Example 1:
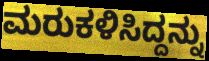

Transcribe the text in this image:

ಮರುಕಳಿಸಿದ್ದನ್ನು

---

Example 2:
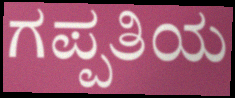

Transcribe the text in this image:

ಗಪ್ಪತಿಯ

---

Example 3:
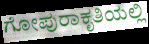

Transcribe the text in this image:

ಗೋಪುರಾಕೃತಿಯಲ್ಲಿ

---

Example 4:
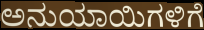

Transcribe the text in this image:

ಅನುಯಾಯಿಗಳಿಗೆ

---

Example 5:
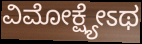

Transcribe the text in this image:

ವಿಮೋಕ್ಷ್ಯೇಽಥ